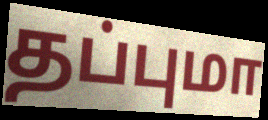
தப்புமா